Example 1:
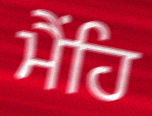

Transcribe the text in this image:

ਮੈਂਹਿ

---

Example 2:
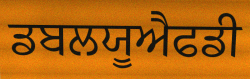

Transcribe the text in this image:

ਡਬਲਯੂਐਫਡੀ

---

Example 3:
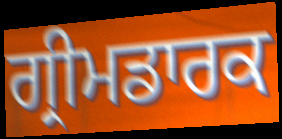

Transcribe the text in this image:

ਗ੍ਰੀਮਡਾਰਕ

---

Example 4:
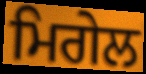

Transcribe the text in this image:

ਮਿਗੇਲ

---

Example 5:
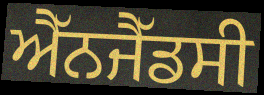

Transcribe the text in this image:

ਐੱਨਜੈੱਡਸੀ